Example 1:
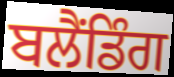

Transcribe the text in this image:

ਬਲੈਂਡਿੰਗ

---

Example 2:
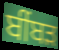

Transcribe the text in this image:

ਬੀਂਬੜ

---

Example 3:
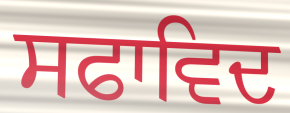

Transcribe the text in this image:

ਸਫਾਵਿਦ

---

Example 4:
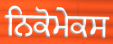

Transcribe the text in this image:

ਨਿਕੋਮੇਕਸ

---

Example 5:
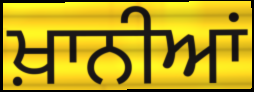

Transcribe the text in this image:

ਖ਼ਾਨੀਆਂ